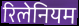
रिलेनियम